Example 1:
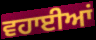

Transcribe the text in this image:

ਵਹਾਈਆਂ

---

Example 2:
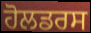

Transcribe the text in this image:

ਹੋਲਡਰਸ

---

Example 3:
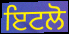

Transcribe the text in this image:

ਇਟਲੋ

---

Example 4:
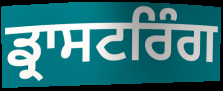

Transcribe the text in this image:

ਡ੍ਰਾਸਟਰਿੰਗ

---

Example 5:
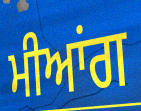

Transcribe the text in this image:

ਮੀਆਂਗ